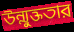
উন্মুক্ততার